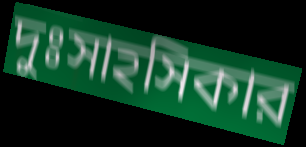
দুঃসাহসিকার